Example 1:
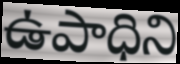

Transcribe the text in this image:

ఉపాధిని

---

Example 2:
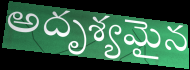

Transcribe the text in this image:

అదృశ్యమైన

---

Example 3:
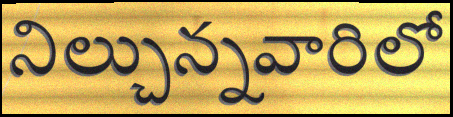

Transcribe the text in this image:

నిల్చున్నవారిలో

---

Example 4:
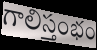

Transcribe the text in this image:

గాలిస్తంభం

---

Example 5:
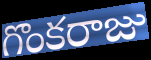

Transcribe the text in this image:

గొంకరాజు